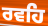
ਰਵਹਿ